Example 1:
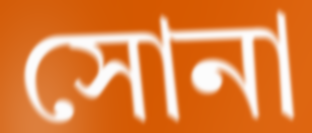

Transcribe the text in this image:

সোনা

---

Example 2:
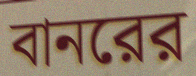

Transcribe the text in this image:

বানরের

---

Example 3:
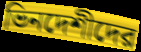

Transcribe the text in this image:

ভিনদেশীদের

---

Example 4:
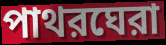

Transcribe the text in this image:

পাথরঘেরা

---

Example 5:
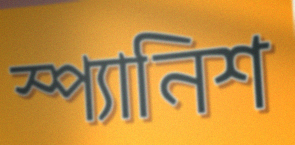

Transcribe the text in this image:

স্প্যানিশ